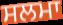
ਸਲਮਾ